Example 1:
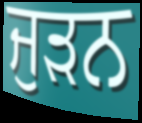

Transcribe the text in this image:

ਜੁਡ਼ਨ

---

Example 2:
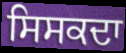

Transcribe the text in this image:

ਸਿਸਕਦਾ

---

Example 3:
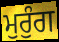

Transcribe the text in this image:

ਮੁਰੁੰਗ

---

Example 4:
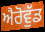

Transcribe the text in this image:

ਐਰੋਵੁੱਡ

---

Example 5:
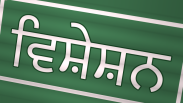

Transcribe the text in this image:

ਵਿਸ਼ੇਸ਼ਨ